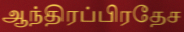
ஆந்திரப்பிரதேச